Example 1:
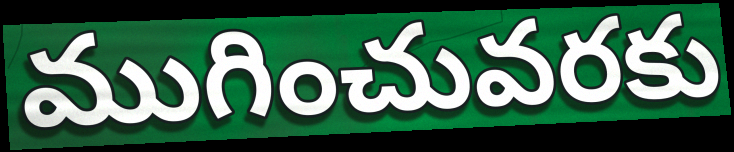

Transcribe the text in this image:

ముగించువరకు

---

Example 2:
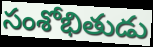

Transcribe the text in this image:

సంశోభితుడు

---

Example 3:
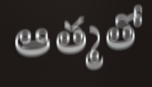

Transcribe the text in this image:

ఆత్మతో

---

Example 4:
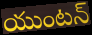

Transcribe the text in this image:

యుంటన్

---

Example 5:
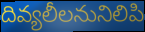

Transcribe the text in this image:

దివ్యలీలనునిలిపి